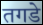
तगडे